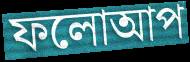
ফলোআপ